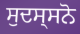
ਸੁਦਸ੍ਸਨੋ